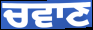
ਚਵਾਣ